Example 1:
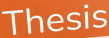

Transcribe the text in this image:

Thesis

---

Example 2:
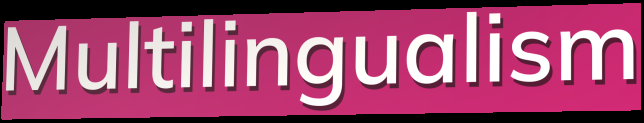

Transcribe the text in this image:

Multilingualism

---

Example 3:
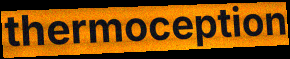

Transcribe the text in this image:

thermoception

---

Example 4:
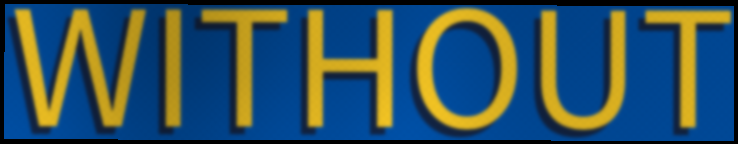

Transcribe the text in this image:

WITHOUT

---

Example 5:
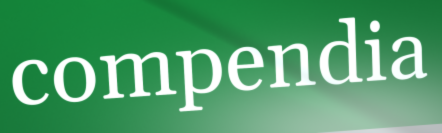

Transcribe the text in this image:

compendia